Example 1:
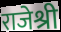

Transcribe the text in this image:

राजेश्री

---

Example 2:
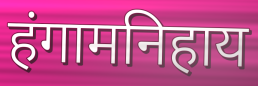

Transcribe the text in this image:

हंगामनिहाय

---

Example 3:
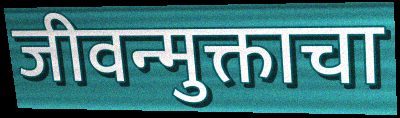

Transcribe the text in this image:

जीवन्मुक्ताचा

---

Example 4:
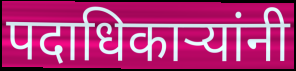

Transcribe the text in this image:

पदाधिकार्‍यांनी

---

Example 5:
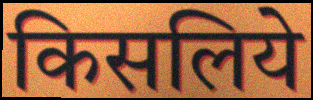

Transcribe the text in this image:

किसलिये